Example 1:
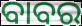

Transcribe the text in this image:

ବାବର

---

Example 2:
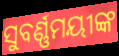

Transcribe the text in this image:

ସୁବର୍ଣ୍ଣମୟୀଙ୍କ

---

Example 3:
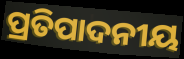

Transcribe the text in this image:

ପ୍ରତିପାଦନୀୟ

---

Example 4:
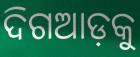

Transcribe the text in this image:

ଦିଗଆଡ଼କୁ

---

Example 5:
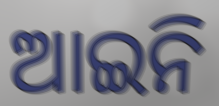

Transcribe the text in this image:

ଆଇନି